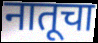
नातूचा